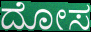
ದೋಸ